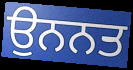
ਉਨਨਤ